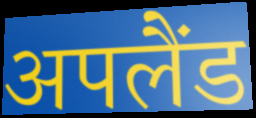
अपलैंड